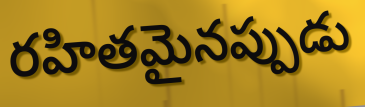
రహితమైనప్పుడు